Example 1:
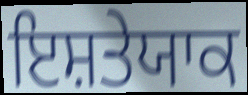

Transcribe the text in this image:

ਇਸ਼ਤੇਯਾਕ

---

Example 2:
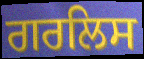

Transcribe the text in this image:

ਗਰਲਿਸ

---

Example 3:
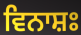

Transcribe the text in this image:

ਵਿਨਾਸ਼ਃ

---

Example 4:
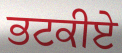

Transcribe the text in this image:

ਭਟਕੀਏ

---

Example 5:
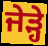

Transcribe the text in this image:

ਜੇੜ੍ਹੇ